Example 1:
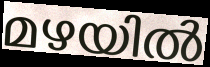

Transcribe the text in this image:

മഴയിൽ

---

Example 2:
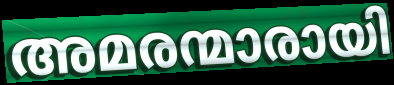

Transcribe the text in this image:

അമരന്മാരായി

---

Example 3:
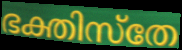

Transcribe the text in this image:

ഭക്തിസ്തേ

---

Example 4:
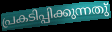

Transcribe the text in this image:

പ്രകടിപ്പിക്കുന്നതു്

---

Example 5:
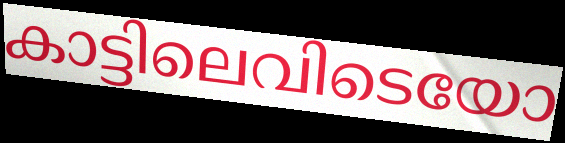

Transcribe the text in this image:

കാട്ടിലെവിടെയോ